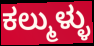
ಕಲ್ಮುಳ್ಳು